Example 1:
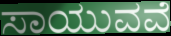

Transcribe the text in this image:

ಸಾಯುವವೆ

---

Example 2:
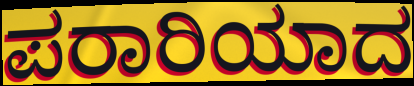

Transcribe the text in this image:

ಪರಾರಿಯಾದ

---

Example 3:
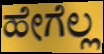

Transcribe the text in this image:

ಹೇಗೆಲ್ಲ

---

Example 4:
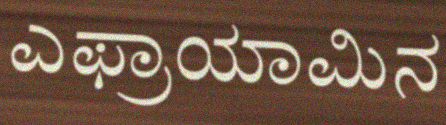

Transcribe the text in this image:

ಎಫ್ರಾಯಾಮಿನ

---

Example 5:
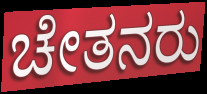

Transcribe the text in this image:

ಚೇತನರು